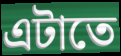
এটাতে